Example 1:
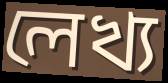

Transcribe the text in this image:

লেখ্য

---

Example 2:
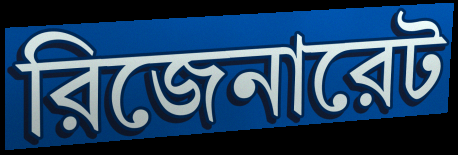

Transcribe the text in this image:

রিজেনারেট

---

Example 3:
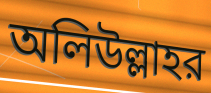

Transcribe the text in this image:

অলিউল্লাহর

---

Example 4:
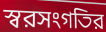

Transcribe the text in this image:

স্বরসংগতির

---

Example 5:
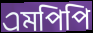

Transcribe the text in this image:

এমপিপি